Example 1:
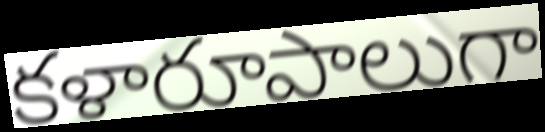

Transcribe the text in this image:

కళారూపాలుగా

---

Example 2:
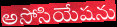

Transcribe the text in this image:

అసోసియేషను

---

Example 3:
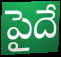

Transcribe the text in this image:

పైదే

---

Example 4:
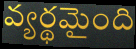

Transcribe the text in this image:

వ్యర్థమైంది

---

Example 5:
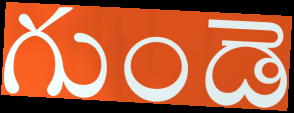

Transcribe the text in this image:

గుండె